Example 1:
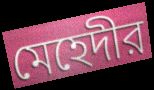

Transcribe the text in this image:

মেহেদীর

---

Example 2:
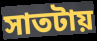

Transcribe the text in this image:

সাতটায়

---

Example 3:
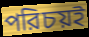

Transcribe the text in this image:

পরিচয়ই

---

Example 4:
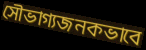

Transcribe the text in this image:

সৌভাগ্যজনকভাবে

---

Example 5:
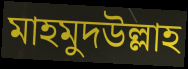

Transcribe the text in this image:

মাহমুদউল্লাহ